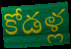
కోడళ్ల